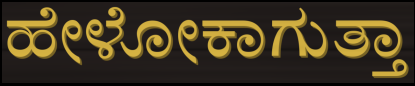
ಹೇಳೋಕಾಗುತ್ತಾ